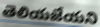
తెలియజేయని